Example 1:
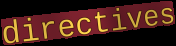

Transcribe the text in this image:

directives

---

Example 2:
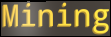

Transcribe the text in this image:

Mining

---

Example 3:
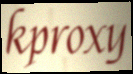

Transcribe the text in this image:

kproxy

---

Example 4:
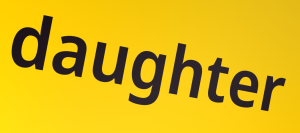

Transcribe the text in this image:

daughter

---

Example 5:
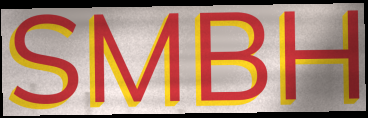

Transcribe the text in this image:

SMBH